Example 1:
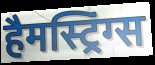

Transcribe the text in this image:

हैमस्ट्रिंग्स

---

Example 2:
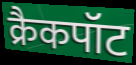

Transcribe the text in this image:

क्रैकपॉट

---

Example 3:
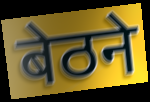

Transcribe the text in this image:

बेठने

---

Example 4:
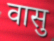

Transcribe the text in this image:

वासु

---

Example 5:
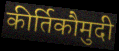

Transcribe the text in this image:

कीर्तिकौमुदी